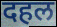
दहल